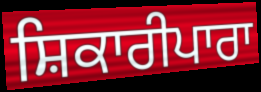
ਸ਼ਿਕਾਰੀਪਾਰਾ